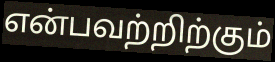
என்பவற்றிற்கும்